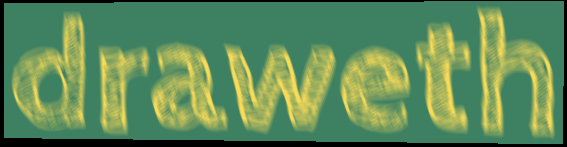
draweth